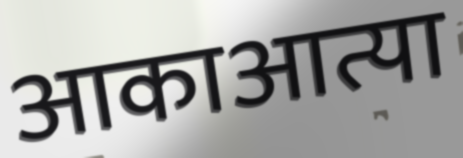
आकाआत्या